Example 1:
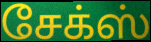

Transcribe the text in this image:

சேக்ஸ்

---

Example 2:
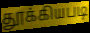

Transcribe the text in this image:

தூக்கியபடி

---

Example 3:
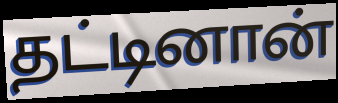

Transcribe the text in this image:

தட்டினான்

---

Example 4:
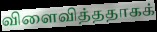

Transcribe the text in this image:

விளைவித்ததாகக்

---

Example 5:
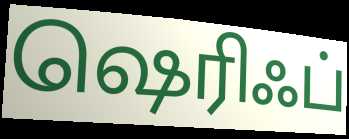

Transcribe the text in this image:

ஷெரிஃப்